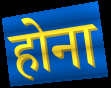
होना